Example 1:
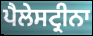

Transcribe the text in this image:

ਪੈਲੇਸਟ੍ਰੀਨਾ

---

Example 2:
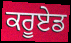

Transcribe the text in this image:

ਕਰੂਏਡ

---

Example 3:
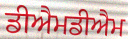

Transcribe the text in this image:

ਡੀਐਮਡੀਐਮ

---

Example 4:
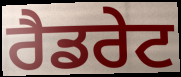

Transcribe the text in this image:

ਰੈਡਰੇਟ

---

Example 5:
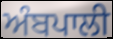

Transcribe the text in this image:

ਅੰਬਪਾਲੀ